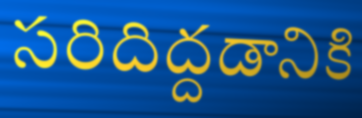
సరిదిద్దడానికి